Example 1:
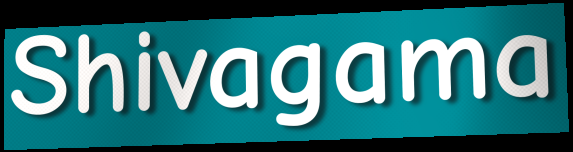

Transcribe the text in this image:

Shivagama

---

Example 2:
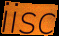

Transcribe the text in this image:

iisc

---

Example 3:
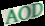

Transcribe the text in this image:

AOD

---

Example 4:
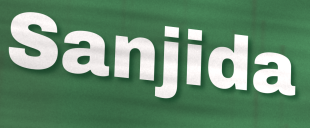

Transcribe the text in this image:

Sanjida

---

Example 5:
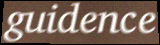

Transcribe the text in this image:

guidence